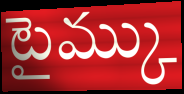
టైమ్కు